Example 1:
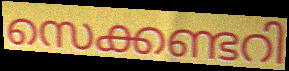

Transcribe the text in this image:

സെക്കണ്ടറി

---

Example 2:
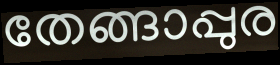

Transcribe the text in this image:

തേങ്ങാപ്പുര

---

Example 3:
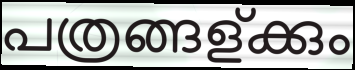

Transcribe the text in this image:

പത്രങ്ങള്ക്കും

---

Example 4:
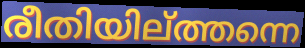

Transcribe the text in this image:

രീതിയില്ത്തന്നെ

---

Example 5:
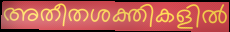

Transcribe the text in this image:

അതീതശക്തികളിൽ